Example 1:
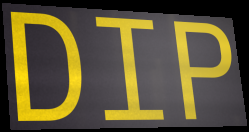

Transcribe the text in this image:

DIP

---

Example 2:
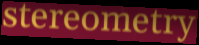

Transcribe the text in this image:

stereometry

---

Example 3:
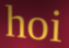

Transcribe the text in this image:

hoi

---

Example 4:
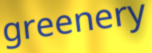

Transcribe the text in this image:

greenery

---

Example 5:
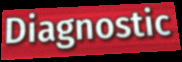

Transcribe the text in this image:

Diagnostic